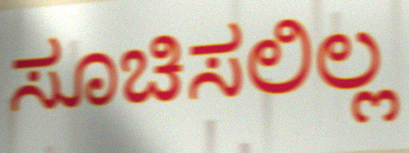
ಸೂಚಿಸಲಿಲ್ಲ